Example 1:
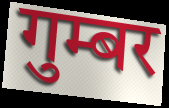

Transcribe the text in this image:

गुम्बर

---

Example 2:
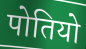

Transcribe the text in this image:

पोतियो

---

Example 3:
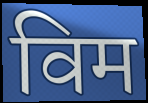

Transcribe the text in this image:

विम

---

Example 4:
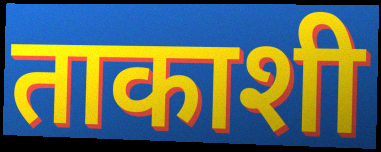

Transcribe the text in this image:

ताकाशी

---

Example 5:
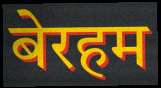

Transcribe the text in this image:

बेरहम